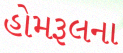
હોમરૂલના